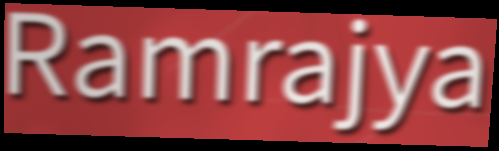
Ramrajya